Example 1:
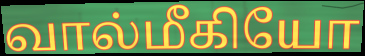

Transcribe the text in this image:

வால்மீகியோ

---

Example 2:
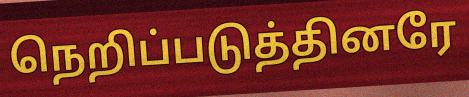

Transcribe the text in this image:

நெறிப்படுத்தினரே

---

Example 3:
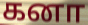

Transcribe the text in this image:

கனா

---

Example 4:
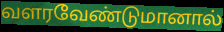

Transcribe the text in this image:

வளரவேண்டுமானால்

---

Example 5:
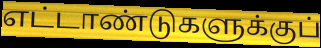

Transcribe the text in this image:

எட்டாண்டுகளுக்குப்